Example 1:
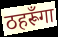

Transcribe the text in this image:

ठहरूँगा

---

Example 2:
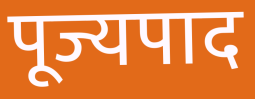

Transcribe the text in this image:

पूज्यपाद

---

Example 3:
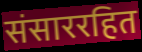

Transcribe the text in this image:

संसाररहित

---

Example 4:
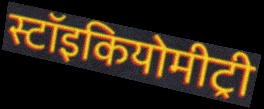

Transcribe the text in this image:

स्टॉइकियोमीट्री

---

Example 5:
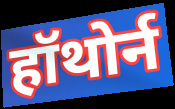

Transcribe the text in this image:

हॉथोर्न